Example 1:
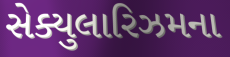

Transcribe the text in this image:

સેક્યુલારિઝમના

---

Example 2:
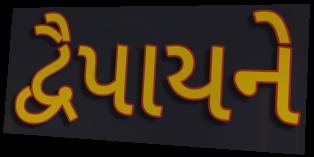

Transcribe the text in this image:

દ્વૈપાયને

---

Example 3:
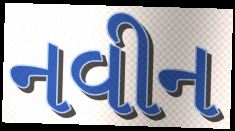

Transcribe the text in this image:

નવીન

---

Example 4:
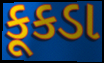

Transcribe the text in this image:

કૂકડા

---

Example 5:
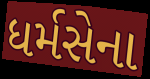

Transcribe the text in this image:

ધર્મસેના